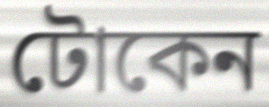
টোকেন